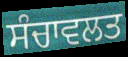
ਸੰਚਾਵਲਤ